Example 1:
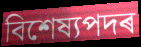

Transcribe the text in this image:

বিশেষ্যপদৰ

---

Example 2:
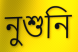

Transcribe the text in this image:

নুশুনি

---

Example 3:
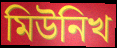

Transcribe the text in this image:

মিউনিখ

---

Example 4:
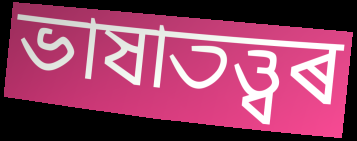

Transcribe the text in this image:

ভাষাতত্ত্বৰ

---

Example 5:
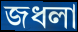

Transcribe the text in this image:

জধলা